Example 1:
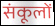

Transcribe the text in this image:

संकूलों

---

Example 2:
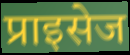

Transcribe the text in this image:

प्राइसेज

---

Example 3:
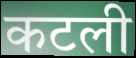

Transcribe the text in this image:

कटली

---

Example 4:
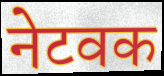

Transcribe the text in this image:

नेटवक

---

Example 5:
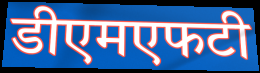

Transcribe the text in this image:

डीएमएफटी